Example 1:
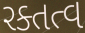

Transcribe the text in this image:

રક્તત્વ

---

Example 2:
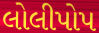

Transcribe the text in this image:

લોલીપોપ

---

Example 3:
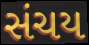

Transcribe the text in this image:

સંચય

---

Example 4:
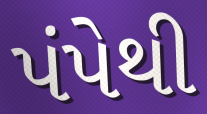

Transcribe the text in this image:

પંપેથી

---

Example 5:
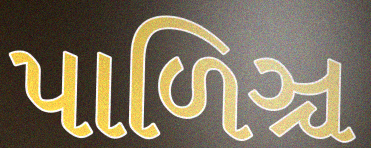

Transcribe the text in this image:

પાળિઞ્ચ